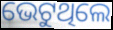
ଭେଟୁଥିଲେ